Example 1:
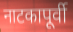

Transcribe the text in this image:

नाटकापूर्वी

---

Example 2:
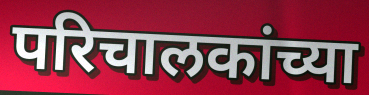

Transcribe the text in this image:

परिचालकांच्या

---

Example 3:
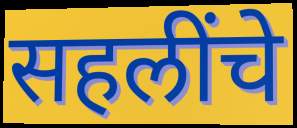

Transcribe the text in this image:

सहलींचे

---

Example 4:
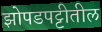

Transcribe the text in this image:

झोपडपट्टीतील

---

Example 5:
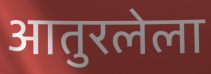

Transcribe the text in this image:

आतुरलेला